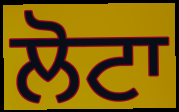
ਲੋਟਾ